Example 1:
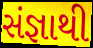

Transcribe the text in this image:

સંજ્ઞાથી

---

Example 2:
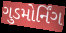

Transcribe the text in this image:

ગુડમોર્નિંગ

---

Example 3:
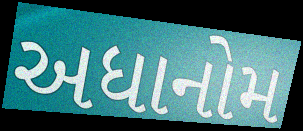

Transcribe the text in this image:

અધાનોમ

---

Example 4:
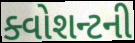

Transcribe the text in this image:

ક્વોશન્ટની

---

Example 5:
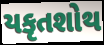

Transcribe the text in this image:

યકૃતશોથ